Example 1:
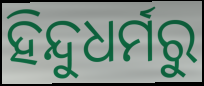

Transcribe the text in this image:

ହିନ୍ଦୁଧର୍ମରୁ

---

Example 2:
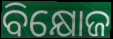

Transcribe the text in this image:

ବିକ୍ଷୋଜ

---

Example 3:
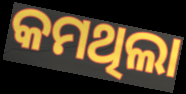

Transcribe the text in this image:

କମଥିଲା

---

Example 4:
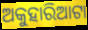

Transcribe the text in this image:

ଅକୁହାରିଆଟା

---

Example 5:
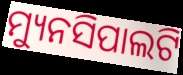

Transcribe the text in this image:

ମ୍ୟୁନସିପାଲଟି